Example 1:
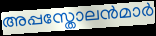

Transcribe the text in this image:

അപ്പസ്തോലൻമാർ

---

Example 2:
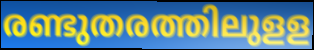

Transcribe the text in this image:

രണ്ടുതരത്തിലുളള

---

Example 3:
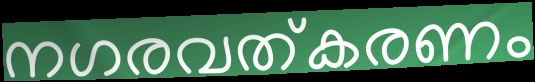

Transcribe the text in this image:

നഗരവത്കരണം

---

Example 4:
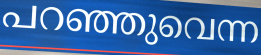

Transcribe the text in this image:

പറഞ്ഞുവെന്ന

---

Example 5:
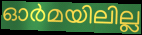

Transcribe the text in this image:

ഓർമയിലില്ല